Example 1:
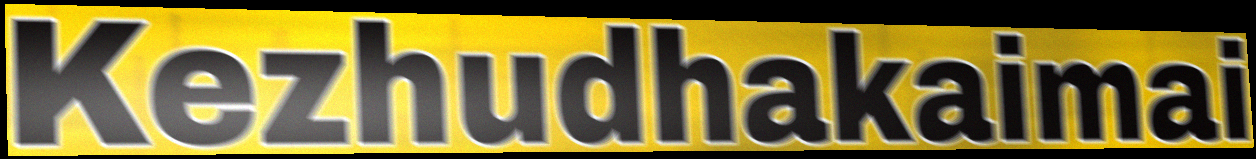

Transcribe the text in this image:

Kezhudhakaimai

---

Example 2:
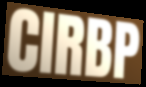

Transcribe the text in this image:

CIRBP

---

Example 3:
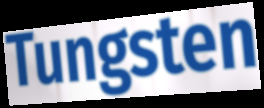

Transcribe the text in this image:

Tungsten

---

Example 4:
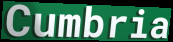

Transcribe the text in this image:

Cumbria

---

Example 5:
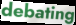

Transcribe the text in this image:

debating